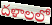
దళాలలో